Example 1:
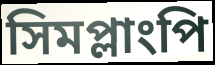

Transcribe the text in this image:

সিমপ্লাংপি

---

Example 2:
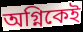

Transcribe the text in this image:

অগ্নিকেই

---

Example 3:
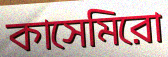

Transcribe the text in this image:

কাসেমিরো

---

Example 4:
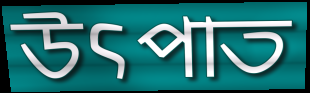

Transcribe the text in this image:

উৎপাত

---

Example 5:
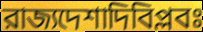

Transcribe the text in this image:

রাজ্যদেশাদিবিপ্লবঃ